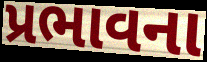
પ્રભાવના